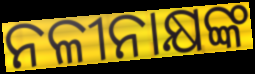
ନଳୀନାକ୍ଷଙ୍କ